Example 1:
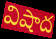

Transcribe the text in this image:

విషాద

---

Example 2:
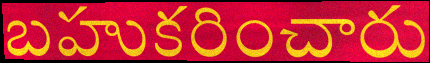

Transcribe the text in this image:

బహుకరించారు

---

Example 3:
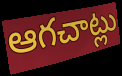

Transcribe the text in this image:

ఆగచాట్లు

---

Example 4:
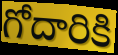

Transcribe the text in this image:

గోదారికి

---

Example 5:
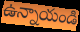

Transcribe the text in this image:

ఉన్నాయండి